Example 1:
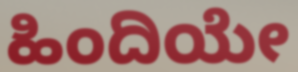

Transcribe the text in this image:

ಹಿಂದಿಯೇ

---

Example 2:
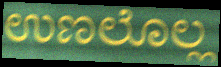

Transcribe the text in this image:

ಉಣಲೊಲ್ಲ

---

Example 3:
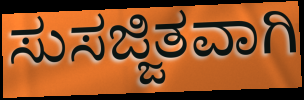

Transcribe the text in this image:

ಸುಸಜ್ಜಿತವಾಗಿ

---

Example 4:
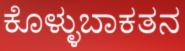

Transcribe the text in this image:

ಕೊಳ್ಳುಬಾಕತನ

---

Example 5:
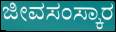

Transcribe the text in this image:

ಜೀವಸಂಸ್ಕಾರ